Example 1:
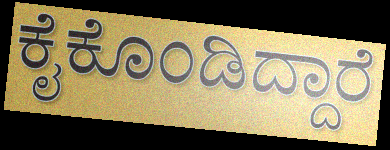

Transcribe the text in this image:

ಕೈಕೊಂಡಿದ್ದಾರೆ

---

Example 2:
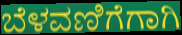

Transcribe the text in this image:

ಬೆಳವಣಿಗೆಗಾಗಿ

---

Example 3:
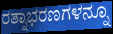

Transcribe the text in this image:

ರತ್ನಾಭರಣಗಳನ್ನೂ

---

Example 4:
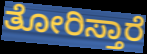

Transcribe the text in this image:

ತೋರಿಸ್ತಾರೆ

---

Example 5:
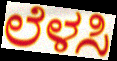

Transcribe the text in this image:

ಲೆಳಸಿ